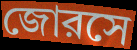
জোরসে